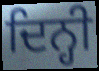
ਦਿਨ੍ਹੀ